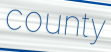
county